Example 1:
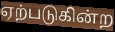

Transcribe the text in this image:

ஏற்படுகின்ற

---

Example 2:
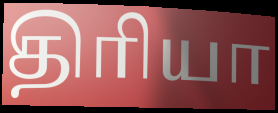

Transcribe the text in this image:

திரியா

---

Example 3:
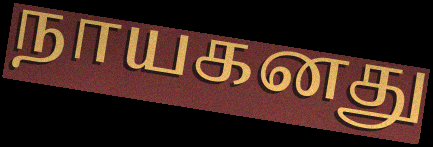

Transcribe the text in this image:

நாயகனது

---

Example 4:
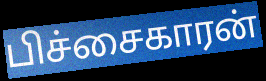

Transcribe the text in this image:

பிச்சைகாரன்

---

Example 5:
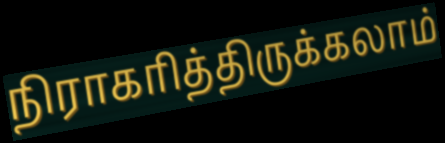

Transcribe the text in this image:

நிராகரித்திருக்கலாம்